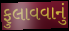
ફુલાવવાનું